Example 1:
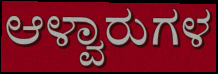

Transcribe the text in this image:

ಆಳ್ವಾರುಗಳ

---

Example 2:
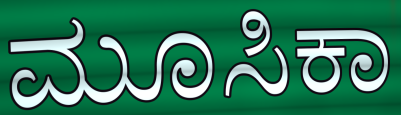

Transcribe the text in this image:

ಮೂಸಿಕಾ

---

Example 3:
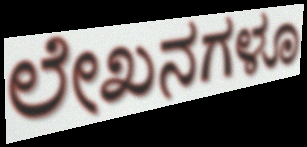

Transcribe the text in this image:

ಲೇಖನಗಳೂ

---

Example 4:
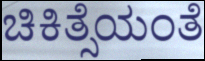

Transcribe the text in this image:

ಚಿಕಿತ್ಸೆಯಂತೆ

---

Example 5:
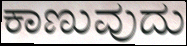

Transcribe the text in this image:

ಕಾಣುವುದು